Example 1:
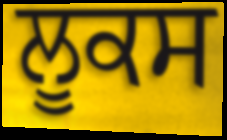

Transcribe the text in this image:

ਲੂਕਸ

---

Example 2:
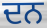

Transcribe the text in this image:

ਦਨ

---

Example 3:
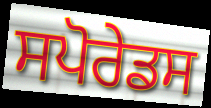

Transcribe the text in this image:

ਸਪੋਰੇਡਸ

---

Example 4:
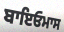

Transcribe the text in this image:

ਬਾਇਓਮਾਸ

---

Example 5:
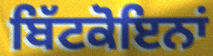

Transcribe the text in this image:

ਬਿੱਟਕੋਇਨਾਂ